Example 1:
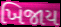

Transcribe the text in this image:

ખિજાય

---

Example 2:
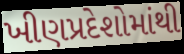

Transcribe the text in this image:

ખીણપ્રદેશોમાંથી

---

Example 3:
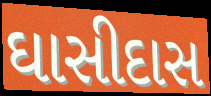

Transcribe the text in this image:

ઘાસીદાસ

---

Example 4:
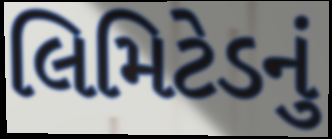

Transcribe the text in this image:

લિમિટેડનું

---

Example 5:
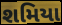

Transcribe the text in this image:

શમિયા